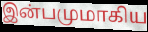
இன்பமுமாகிய